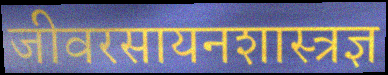
जीवरसायनशास्त्रज्ञ